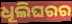
ଧୂଲିଘରର